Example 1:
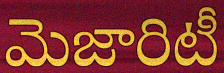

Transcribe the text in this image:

మెజారిటీ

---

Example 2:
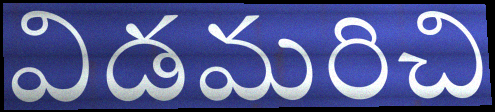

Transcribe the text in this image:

విడమరిచి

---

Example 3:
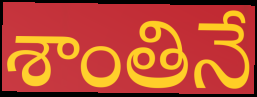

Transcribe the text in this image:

శాంతినే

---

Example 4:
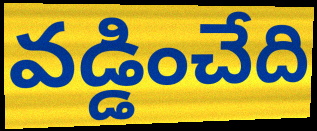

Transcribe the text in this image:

వడ్డించేది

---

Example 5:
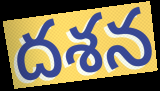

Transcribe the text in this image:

దశన